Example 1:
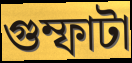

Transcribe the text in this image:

গুম্ফাটা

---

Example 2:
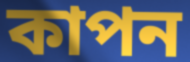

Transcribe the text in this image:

কাপন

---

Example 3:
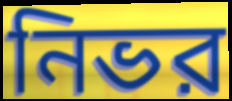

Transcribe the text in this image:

নিভর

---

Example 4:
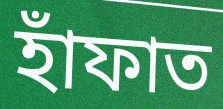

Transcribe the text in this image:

হাঁফাত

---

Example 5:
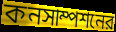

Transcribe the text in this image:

কনসাম্পশনের